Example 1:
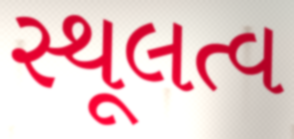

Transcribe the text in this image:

સ્થૂલત્વ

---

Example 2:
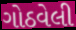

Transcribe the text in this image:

ગોઠવેલી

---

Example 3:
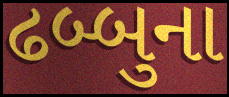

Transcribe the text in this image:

ઢબ્બુના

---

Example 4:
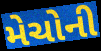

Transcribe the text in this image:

મેચોની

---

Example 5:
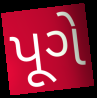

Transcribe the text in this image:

પૂગે